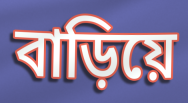
বাড়িয়ে